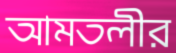
আমতলীর